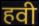
हवी